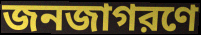
জনজাগরণে